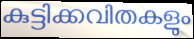
കുട്ടിക്കവിതകളും